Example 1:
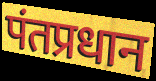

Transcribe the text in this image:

पंतप्रधान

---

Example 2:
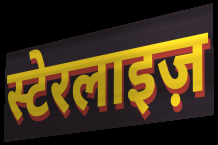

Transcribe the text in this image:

स्टेरलाइज़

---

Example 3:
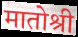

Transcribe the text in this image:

मातोश्री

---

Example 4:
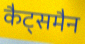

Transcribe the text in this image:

कैट्समैन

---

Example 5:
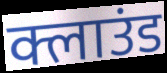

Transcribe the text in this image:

क्लाउंड